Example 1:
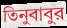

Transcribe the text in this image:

তিনুবাবুর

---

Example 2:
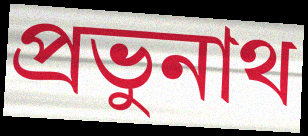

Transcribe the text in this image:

প্রভুনাথ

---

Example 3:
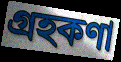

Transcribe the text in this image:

গ্রহকণা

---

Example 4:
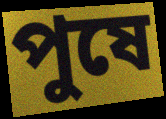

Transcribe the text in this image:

পুষে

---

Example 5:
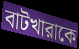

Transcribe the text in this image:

বাটখারাকে